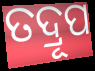
ତଦ୍ରୂପ